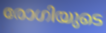
രോഗിയുടെ